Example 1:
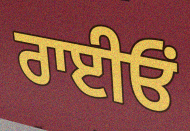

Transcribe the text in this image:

ਰਾਈਓਂ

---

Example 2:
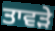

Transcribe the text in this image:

ਤਾਵੜੇ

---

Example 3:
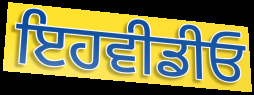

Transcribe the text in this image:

ਇਹਵੀਡੀਓ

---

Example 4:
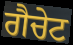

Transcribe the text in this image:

ਗੈਚੇਟ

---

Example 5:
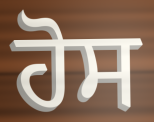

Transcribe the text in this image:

ਹੋਸ